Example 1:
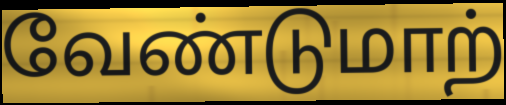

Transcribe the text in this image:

வேண்டுமாற்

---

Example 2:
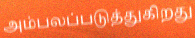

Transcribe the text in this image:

அம்பலப்படுத்துகிறது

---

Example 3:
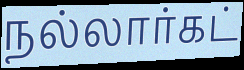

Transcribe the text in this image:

நல்லார்கட்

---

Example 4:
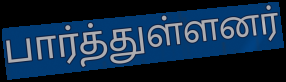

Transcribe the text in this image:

பார்த்துள்ளனர்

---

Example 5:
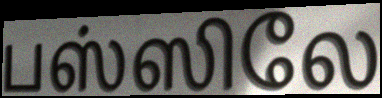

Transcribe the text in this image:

பஸ்ஸிலே